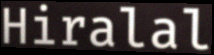
Hiralal